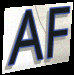
AF